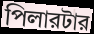
পিলারটার